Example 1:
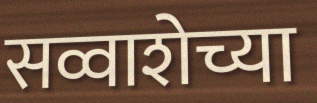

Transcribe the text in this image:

सव्वाशेच्या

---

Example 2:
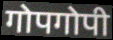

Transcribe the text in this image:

गोपगोपी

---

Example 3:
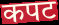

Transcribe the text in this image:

कपट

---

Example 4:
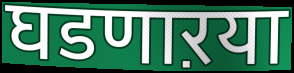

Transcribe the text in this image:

घडणाऱया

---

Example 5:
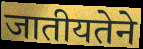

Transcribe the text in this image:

जातीयतेने